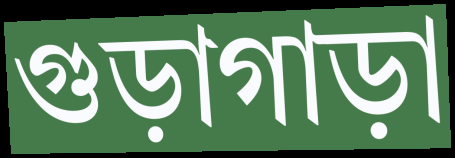
গুড়াগাড়া